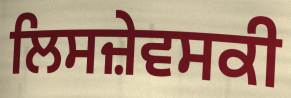
ਲਿਸਜ਼ੇਵਸਕੀ